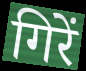
गिरें